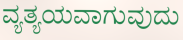
ವ್ಯತ್ಯಯವಾಗುವುದು